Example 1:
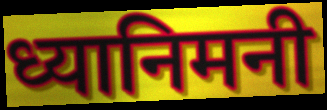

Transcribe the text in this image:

ध्यानिमनी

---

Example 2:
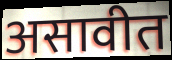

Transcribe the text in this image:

असावीत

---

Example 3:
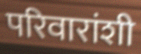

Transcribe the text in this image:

परिवारांशी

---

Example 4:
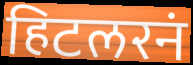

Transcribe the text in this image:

हिटलरनं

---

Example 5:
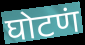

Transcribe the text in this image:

घोटणं